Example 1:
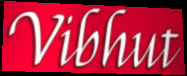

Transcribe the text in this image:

Vibhut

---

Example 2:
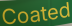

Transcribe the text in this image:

Coated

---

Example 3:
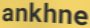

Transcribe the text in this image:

ankhne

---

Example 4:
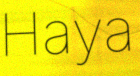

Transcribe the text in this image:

Haya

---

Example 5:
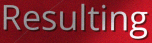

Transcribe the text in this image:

Resulting